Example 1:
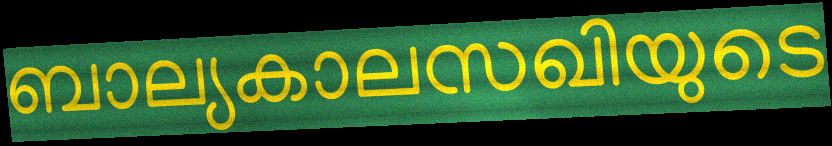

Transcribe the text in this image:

ബാല്യകാലസഖിയുടെ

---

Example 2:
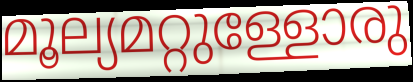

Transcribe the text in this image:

മൂല്യമറ്റുള്ളോരു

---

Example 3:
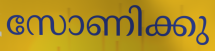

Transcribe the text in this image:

സോണിക്കു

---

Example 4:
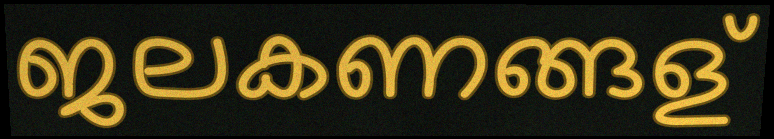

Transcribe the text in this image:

ജലകണങ്ങള്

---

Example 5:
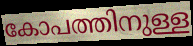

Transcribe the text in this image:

കോപത്തിനുള്ള